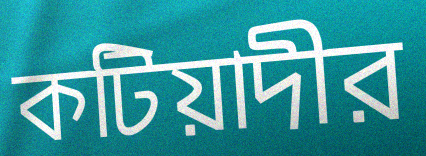
কটিয়াদীর